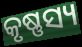
କୃଷ୍ଣସ୍ୟ